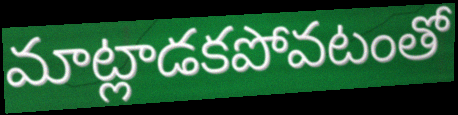
మాట్లాడకపోవటంతో